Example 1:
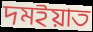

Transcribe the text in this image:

দমইয়াত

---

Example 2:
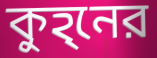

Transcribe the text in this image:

কুহ্‌নের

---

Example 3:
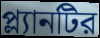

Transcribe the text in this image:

প্ল্যানটির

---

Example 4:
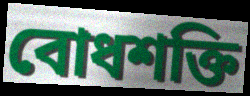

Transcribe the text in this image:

বোধশক্তি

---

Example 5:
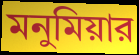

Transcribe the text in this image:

মনুমিয়ার